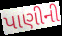
પાણીની